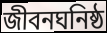
জীবনঘনিষ্ঠ